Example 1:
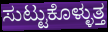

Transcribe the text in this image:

ಸುಟ್ಟುಕೊಳ್ಳುತ್ತ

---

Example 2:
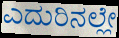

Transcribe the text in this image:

ಎದುರಿನಲ್ಲೇ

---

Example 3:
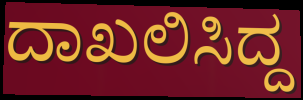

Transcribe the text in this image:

ದಾಖಲಿಸಿದ್ದ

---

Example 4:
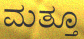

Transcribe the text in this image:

ಮತ್ತೂ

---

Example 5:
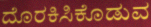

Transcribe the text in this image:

ದೊರಕಿಸಿಕೊಡುವ